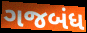
ગજબંધ